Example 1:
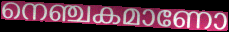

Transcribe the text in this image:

നെഞ്ചകമാണോ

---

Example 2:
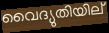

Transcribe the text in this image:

വൈദ്യുതിയില്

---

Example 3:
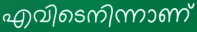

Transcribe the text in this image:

എവിടെനിന്നാണ്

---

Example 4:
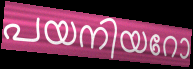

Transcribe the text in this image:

പയനിയറോ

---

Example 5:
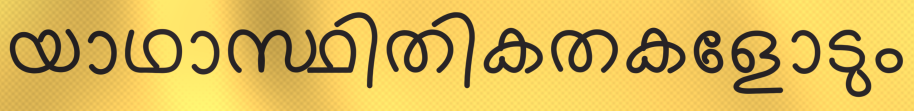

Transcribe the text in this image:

യാഥാസ്ഥിതികതകളോടും